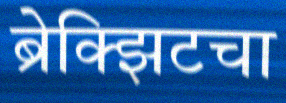
ब्रेक्झिटचा